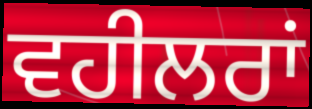
ਵਹੀਲਰਾਂ